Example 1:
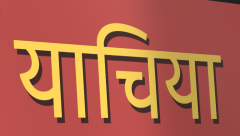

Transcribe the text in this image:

याचिया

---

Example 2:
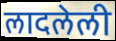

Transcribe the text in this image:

लादलेली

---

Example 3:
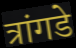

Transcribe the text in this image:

त्रांगडे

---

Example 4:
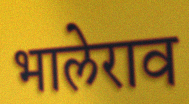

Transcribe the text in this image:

भालेराव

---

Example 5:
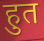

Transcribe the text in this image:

हुत